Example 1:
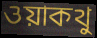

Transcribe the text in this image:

ওয়াকথু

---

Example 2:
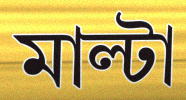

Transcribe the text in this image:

মাল্টা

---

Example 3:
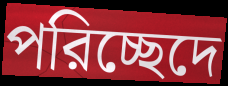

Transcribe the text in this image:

পরিচ্ছেদে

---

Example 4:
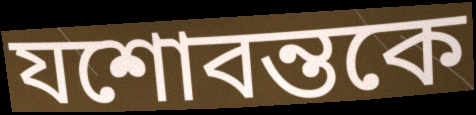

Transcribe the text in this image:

যশোবন্তকে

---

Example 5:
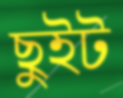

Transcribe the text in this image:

ছুইট